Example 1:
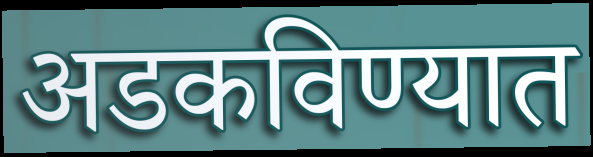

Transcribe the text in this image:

अडकविण्यात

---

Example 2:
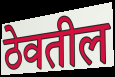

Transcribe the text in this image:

ठेवतील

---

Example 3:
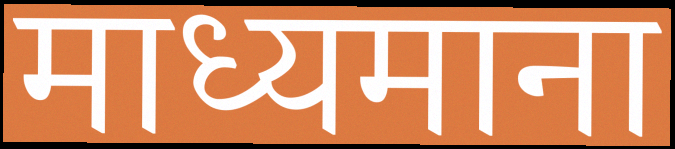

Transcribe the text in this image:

माध्यमाना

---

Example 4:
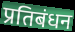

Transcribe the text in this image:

प्रतिबंधन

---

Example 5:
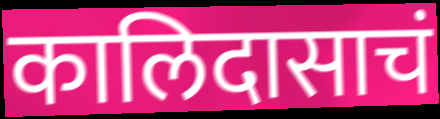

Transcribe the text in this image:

कालिदासाचं